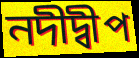
নদীদ্বীপ